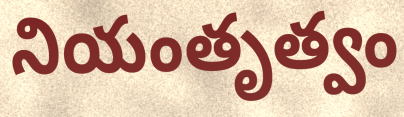
నియంతృత్వం